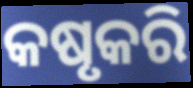
କଷୃକରି